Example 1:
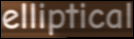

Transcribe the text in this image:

elliptical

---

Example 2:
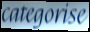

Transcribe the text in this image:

categorise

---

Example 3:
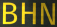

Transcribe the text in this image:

BHN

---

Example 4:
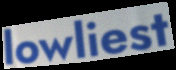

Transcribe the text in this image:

lowliest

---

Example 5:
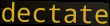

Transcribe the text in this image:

dectate